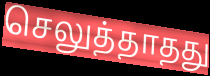
செலுத்தாதது